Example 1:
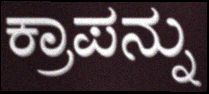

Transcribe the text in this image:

ಕ್ರಾಪನ್ನು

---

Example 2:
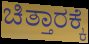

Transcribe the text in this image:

ಚಿತ್ತಾರಕ್ಕೆ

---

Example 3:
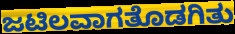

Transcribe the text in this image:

ಜಟಿಲವಾಗತೊಡಗಿತು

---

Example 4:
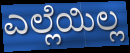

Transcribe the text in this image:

ಎಲ್ಲೆಯಿಲ್ಲ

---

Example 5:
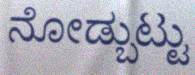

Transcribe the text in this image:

ನೋಡ್ಬುಟ್ಟು